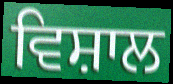
ਵਿਸ਼ਾਲ